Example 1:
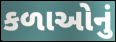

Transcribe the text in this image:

કળાઓનું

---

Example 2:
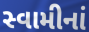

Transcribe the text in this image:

સ્વામીનાં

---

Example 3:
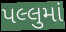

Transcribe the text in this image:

પલ્લુમાં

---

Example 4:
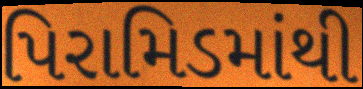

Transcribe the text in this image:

પિરામિડમાંથી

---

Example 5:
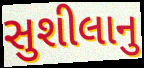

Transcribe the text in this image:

સુશીલાનુ